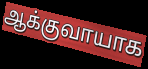
ஆக்குவாயாக